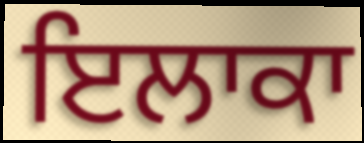
ਇਲਾਕਾ